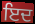
ਇਦ